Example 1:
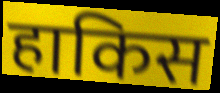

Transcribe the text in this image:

हाकिस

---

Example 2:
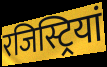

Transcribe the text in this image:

रजिस्ट्रियां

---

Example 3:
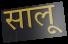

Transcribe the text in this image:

सालू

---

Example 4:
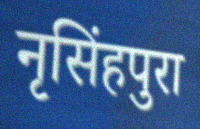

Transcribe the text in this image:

नृसिंहपुरा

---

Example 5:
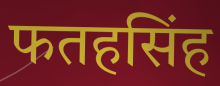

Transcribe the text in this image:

फतहसिंह